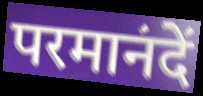
परमानंदें